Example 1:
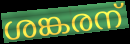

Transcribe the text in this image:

ശങ്കരന്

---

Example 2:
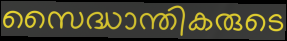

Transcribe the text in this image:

സൈദ്ധാന്തികരുടെ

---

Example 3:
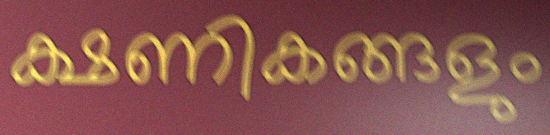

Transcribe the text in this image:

ക്ഷണികങ്ങളും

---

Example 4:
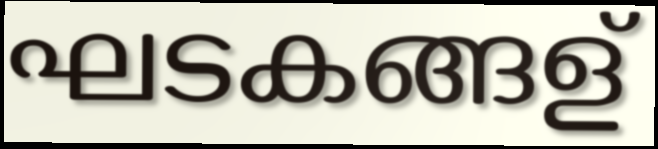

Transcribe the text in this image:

ഘടകങ്ങള്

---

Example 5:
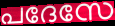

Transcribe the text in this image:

പദേസേ